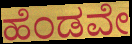
ಹೆಂಡವೇ